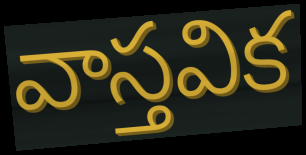
వాస్తవిక